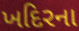
ખદિરના